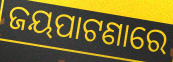
ଜୟପାଟଣାରେ